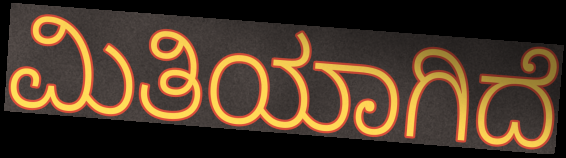
ಮಿತಿಯಾಗಿದೆ